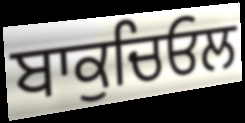
ਬਾਕੁਚਿਓਲ